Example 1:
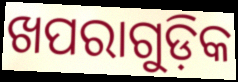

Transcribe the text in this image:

ଖପରାଗୁଡ଼ିକ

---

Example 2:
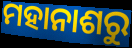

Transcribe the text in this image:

ମହାନାଶରୁ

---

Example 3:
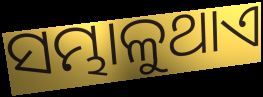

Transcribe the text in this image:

ସମ୍ଭାଳୁଥାଏ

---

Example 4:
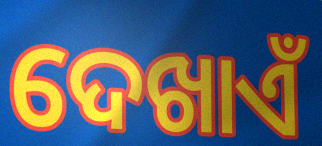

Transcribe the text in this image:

ଦେଖାଏଁ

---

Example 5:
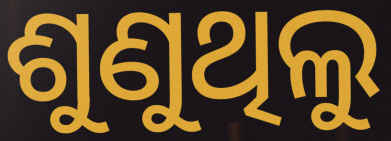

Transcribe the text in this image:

ଶୁଣୁଥିଲୁ